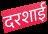
दरशाई